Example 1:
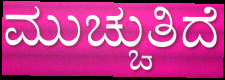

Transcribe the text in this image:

ಮುಚ್ಚುತಿದೆ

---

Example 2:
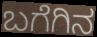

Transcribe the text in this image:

ಬಗೆಗಿನ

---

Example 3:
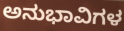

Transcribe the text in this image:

ಅನುಭಾವಿಗಳ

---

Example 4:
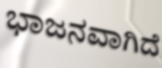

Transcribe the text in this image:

ಭಾಜನವಾಗಿದೆ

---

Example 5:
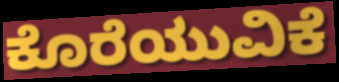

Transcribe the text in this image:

ಕೊರೆಯುವಿಕೆ